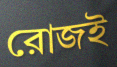
রোজই